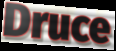
Druce